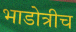
भाडोत्रीच